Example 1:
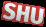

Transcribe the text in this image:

SHU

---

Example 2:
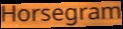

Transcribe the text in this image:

Horsegram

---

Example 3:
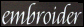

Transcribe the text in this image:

embroider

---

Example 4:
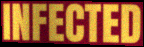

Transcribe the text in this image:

INFECTED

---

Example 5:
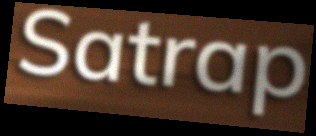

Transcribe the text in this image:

Satrap